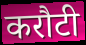
करौटी